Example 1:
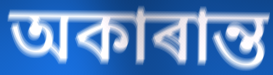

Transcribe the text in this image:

অকাৰান্ত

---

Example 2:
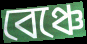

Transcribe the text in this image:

বেঞ্চে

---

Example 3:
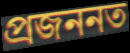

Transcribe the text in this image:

প্ৰজননত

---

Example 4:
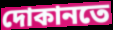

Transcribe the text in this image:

দোকানতে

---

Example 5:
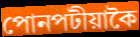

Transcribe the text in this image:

পোনপটীয়াকৈ